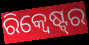
ରିକ୍ୱେଷ୍ଟ୍‌ର